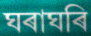
ঘৰাঘৰি